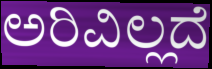
ಅರಿವಿಲ್ಲದೆ